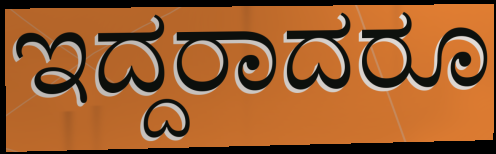
ಇದ್ದರಾದರೂ